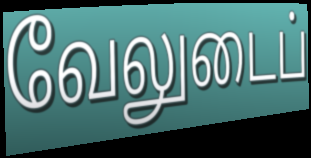
வேலுடைப்